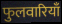
फुलवारियाँ